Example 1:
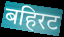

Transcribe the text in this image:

बहिरट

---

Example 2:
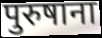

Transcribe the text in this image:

पुरुषाना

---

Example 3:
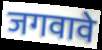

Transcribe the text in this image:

जगवावे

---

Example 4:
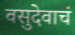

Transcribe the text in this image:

वसुदेवाचं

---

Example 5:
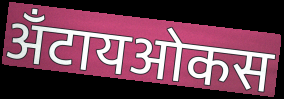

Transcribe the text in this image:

अँटायओकस